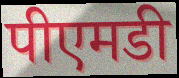
पीएमडी